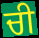
ਚੀ